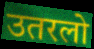
उतरलो